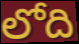
లోది